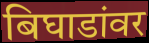
बिघाडांवर